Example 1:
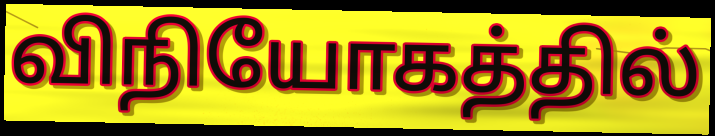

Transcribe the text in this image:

விநியோகத்தில்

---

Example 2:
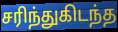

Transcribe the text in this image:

சரிந்துகிடந்த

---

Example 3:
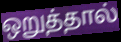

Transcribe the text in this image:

ஒறுத்தால்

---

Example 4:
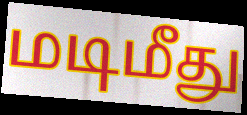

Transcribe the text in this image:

மடிமீது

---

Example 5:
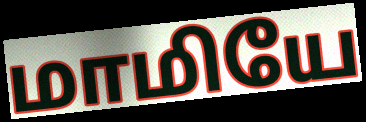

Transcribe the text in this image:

மாமியே